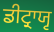
ਡੀਟ੍ਰਾਯ੍ਟ